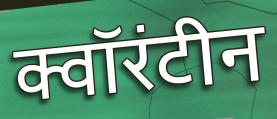
क्वॉरंटीन